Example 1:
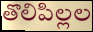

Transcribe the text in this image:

తొలిపిల్లల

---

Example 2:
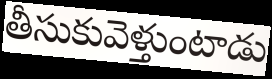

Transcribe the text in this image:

తీసుకువెళ్తుంటాడు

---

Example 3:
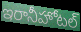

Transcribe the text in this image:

ఇరానీహోటల్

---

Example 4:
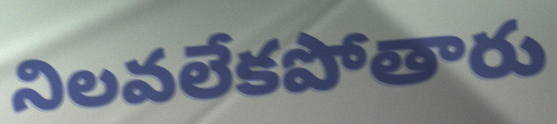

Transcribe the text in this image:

నిలవలేకపోతారు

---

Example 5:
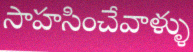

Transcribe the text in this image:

సాహసించేవాళ్ళు